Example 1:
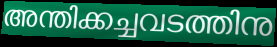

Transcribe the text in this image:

അന്തിക്കച്ചവടത്തിനു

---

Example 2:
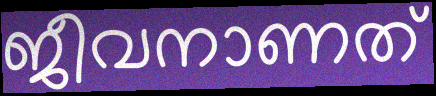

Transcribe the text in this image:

ജീവനാണത്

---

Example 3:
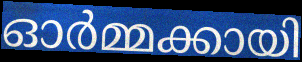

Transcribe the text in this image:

ഓർമ്മക്കായി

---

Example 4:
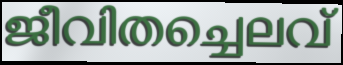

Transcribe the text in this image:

ജീവിതച്ചെലവ്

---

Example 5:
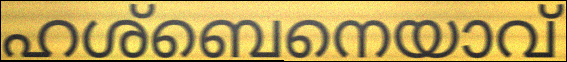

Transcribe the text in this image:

ഹശ്ബെനെയാവ്